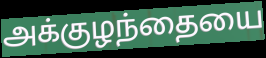
அக்குழந்தையை